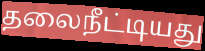
தலைநீட்டியது